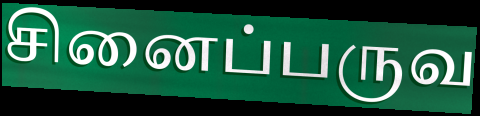
சினைப்பருவ